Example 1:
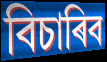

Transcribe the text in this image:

বিচাৰিব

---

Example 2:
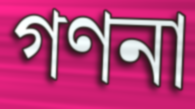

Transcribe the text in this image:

গণনা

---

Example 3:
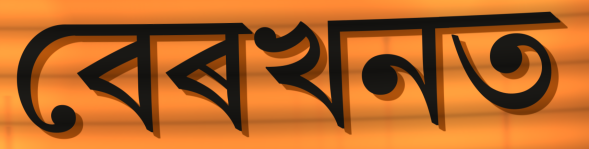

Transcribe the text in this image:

বেৰখনত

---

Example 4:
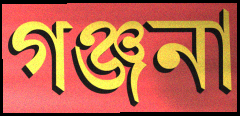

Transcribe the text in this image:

গঞ্জনা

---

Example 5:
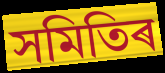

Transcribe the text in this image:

সমিতিৰ